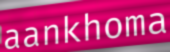
aankhoma